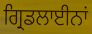
ਗ੍ਰਿਡਲਾਈਨਾਂ